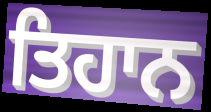
ਤਿਹਾਨ